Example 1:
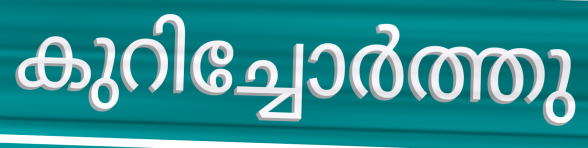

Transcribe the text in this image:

കുറിച്ചോർത്തു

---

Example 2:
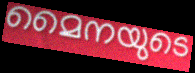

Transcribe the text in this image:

മൈനയുടെ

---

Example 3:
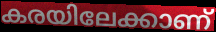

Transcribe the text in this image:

കരയിലേക്കാണ്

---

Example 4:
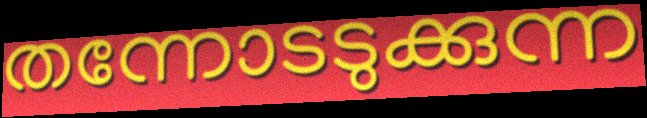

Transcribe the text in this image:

തന്നോടടുക്കുന്ന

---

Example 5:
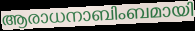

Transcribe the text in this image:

ആരാധനാബിംബമായി